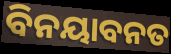
ବିନୟାବନତ